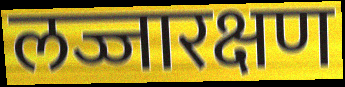
लज्जारक्षण